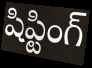
షిప్టింగ్